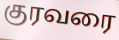
குரவரை